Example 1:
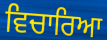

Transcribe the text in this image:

ਵਿਚਾਰਿਆ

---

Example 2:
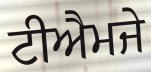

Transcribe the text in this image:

ਟੀਐਮਜੇ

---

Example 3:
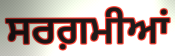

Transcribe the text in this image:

ਸਰਗ਼ਮੀਆਂ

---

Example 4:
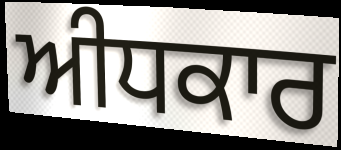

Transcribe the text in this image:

ਅੀਧਕਾਰ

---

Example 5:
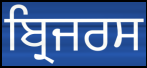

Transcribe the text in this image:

ਬ੍ਰਿਜਰਸ